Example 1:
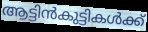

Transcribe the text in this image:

ആട്ടിൻകുട്ടികൾക്ക്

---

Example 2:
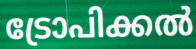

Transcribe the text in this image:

ട്രോപിക്കൽ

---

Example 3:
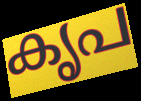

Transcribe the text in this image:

കൃപ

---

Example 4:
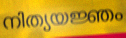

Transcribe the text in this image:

നിത്യയജ്ഞം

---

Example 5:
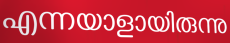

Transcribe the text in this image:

എന്നയാളായിരുന്നു